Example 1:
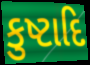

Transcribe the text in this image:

કુષ્ટાદિ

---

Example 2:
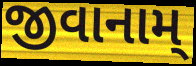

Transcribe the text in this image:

જીવાનામ્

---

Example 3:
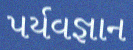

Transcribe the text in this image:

પર્યવજ્ઞાન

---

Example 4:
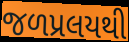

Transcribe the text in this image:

જળપ્રલયથી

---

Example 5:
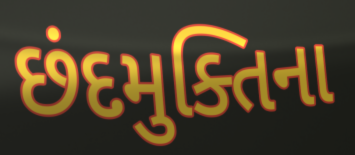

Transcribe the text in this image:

છંદમુક્તિના